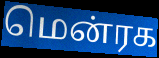
மென்ரக